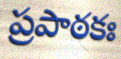
ప్రపాఠకః